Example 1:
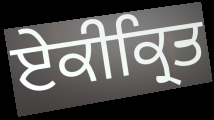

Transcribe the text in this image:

ਏਕੀਕ੍ਰਿਤ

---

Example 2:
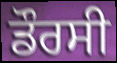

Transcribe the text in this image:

ਡੌਰਸੀ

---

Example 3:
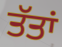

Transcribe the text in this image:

ਤੱਤਾਂ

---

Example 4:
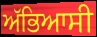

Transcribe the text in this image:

ਅੱਭਿਆਸੀ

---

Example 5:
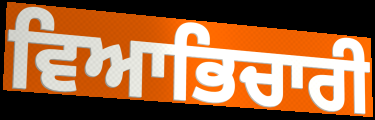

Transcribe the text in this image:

ਵਿਆਭਿਚਾਰੀ